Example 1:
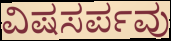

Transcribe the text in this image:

ವಿಷಸರ್ಪವು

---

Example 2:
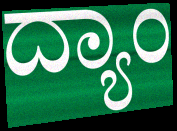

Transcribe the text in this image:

ದ್ಯಾಂ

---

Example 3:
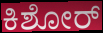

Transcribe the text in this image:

ಕಿಶೋರ್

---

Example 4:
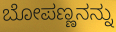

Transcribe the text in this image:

ಬೋಪಣ್ಣನನ್ನು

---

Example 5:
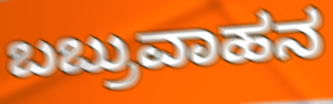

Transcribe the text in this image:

ಬಬ್ರುವಾಹನ